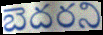
బెదరని